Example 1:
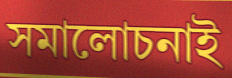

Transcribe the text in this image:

সমালোচনাই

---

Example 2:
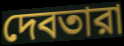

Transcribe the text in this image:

দেবতারা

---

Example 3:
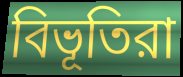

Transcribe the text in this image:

বিভূতিরা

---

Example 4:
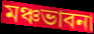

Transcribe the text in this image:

মঞ্চভাবনা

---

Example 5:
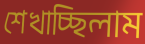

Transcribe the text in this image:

শেখাচ্ছিলাম